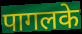
पागलके